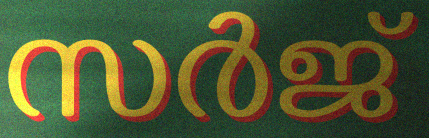
സർജ്